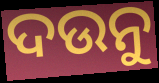
ଦଉନୁ